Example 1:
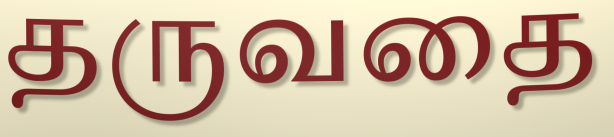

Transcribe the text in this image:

தருவதை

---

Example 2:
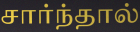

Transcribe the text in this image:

சார்ந்தால்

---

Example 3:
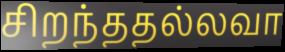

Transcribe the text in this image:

சிறந்ததல்லவா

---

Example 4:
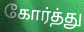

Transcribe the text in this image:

கோர்த்து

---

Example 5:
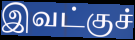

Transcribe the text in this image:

இவட்குச்